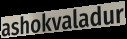
ashokvaladur